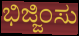
ಭಿಜ್ಜಿಂಸು